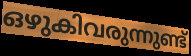
ഒഴുകിവരുന്നുണ്ട്